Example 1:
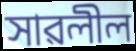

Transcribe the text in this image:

সাৱলীল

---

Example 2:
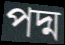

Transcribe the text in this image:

পদ্ম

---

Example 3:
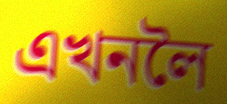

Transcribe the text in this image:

এখনলৈ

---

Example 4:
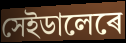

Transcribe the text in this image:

সেইডালেৰে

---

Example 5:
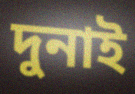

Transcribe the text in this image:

দুনাই